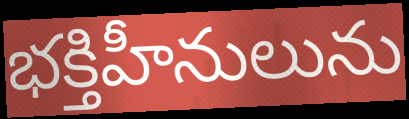
భక్తిహీనులును